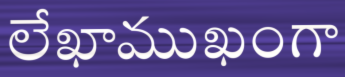
లేఖాముఖంగా